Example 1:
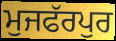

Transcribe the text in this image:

ਮੁਜਫੱਰਪੁਰ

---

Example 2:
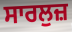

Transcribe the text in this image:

ਸਾਰਲੁਜ਼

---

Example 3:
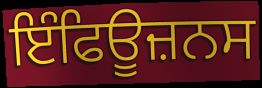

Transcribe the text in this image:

ਇੰਫਿਊਜ਼ਨਸ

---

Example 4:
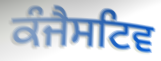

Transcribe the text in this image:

ਕੰਜੈਸਟਿਵ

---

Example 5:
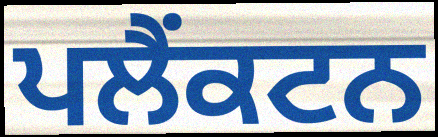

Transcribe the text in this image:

ਪਲੈਂਕਟਨ